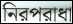
নিরপরাধা